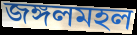
জঙ্গলমহল